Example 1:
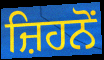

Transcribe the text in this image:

ਜ਼ਿਹਨੋਂ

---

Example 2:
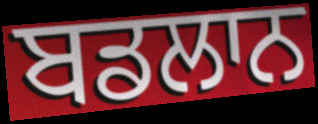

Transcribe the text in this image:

ਬਡਲਾਨ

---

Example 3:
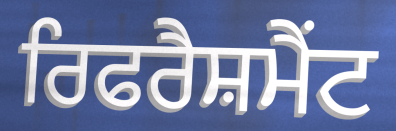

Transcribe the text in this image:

ਰਿਫਰੈਸ਼ਮੈਂਟ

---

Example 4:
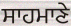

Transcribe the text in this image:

ਸਾਹਮਾਣੇ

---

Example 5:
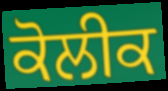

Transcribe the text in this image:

ਕੋਲੀਕ